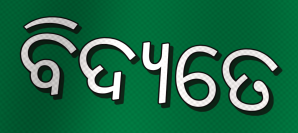
ବିଦ୍ୟତେ